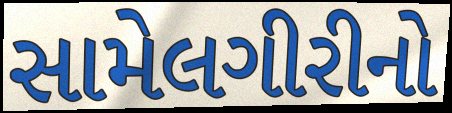
સામેલગીરીનો